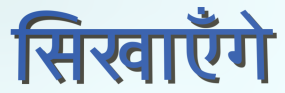
सिखाएँगे